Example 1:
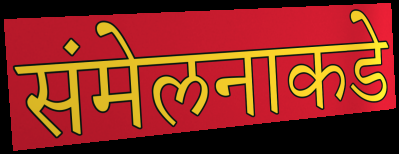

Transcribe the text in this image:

संमेलनाकडे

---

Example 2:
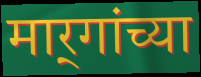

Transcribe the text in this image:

मार्गांच्या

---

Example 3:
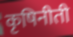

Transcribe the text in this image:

कृषिनीती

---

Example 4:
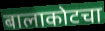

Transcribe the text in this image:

बालाकोटचा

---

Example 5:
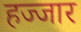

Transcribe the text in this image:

हज्जार